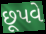
છૂપવે